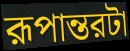
রূপান্তরটা